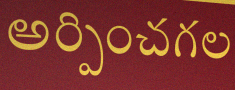
అర్పించగల